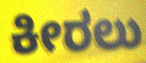
ಕೀರಲು